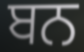
ਬਨ